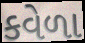
કવેળા